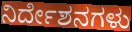
ನಿರ್ದೇಶನಗಳು